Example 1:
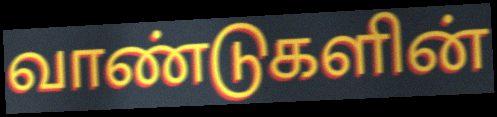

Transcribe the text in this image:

வாண்டுகளின்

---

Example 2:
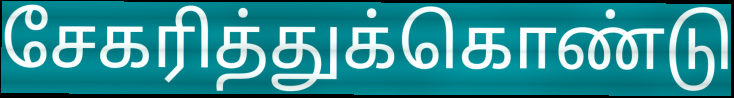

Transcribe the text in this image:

சேகரித்துக்கொண்டு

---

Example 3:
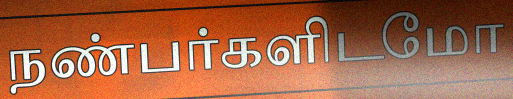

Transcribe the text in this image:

நண்பர்களிடமோ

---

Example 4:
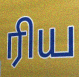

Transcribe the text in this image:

ரிய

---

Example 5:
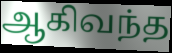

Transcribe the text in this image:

ஆகிவந்த